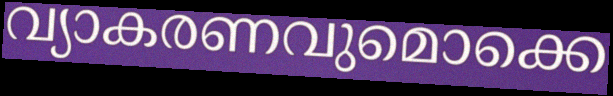
വ്യാകരണവുമൊക്കെ